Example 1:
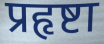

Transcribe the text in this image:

प्रहृष्टा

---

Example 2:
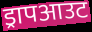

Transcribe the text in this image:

ड्रापआउट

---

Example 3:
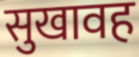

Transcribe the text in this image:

सुखावह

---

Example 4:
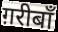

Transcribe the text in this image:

ग़रीबाँ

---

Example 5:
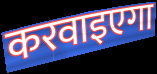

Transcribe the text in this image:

करवाइएगा